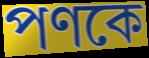
পণকে